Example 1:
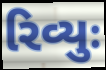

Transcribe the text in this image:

રિવ્યુઃ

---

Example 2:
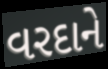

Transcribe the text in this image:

વરદાને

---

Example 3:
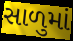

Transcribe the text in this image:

સાળુમાં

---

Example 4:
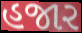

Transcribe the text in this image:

હજાર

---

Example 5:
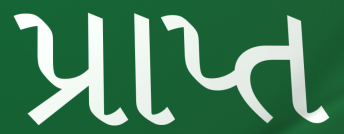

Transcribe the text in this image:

પ્રાપ્‍ત